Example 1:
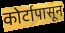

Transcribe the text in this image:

कोर्टापासून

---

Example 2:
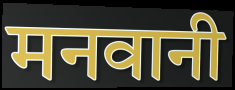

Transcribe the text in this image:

मनवानी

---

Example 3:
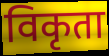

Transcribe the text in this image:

विकृता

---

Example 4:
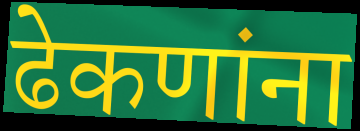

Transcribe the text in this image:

ढेकणांना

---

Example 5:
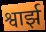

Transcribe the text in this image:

श्वार्झ